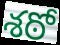
శఠో